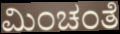
ಮಿಂಚಂತೆ